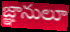
జ్ఞానులూ